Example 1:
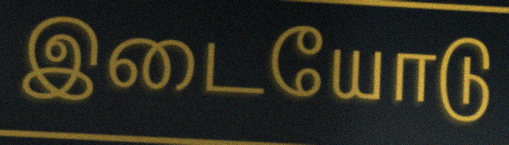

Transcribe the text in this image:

இடையோடு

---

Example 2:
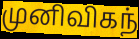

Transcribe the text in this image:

முனிவிகந்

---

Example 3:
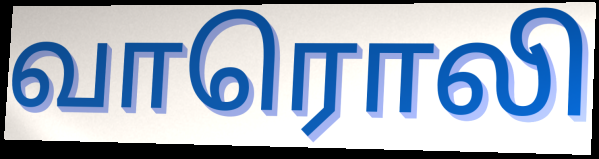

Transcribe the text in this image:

வாரொலி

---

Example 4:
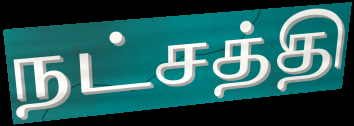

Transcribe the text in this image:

நட்சத்தி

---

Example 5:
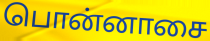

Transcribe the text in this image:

பொன்னாசை